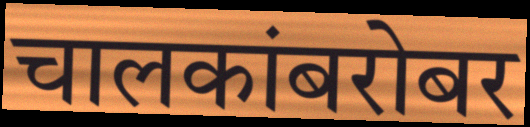
चालकांबरोबर